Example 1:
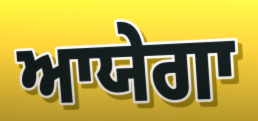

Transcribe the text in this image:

ਆਯੇਗਾ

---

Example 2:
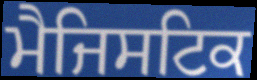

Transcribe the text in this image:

ਮੈਜਿਸਟਿਕ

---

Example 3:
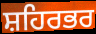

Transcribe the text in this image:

ਸ਼ਹਿਰਭਰ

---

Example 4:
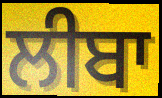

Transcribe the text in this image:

ਲੀਬਾ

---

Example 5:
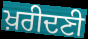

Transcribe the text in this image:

ਖ਼ਰੀਦਣੀ